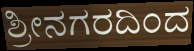
ಶ್ರೀನಗರದಿಂದ